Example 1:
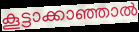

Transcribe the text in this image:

കൂട്ടാക്കാഞ്ഞാൽ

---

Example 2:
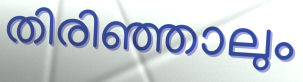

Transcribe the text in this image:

തിരിഞ്ഞാലും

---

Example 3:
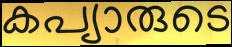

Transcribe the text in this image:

കപ്യാരുടെ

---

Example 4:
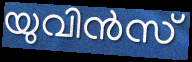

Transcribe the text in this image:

യുവിൻസ്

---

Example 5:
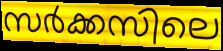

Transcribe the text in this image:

സർക്കസിലെ